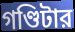
গণ্ডিটার